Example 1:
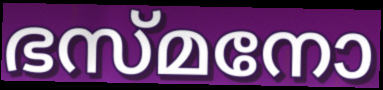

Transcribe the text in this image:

ഭസ്മനോ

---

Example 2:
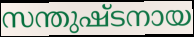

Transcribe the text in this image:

സന്തുഷ്ടനായ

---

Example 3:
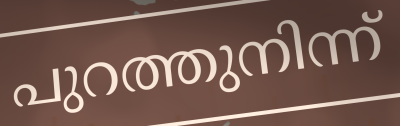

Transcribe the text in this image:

പുറത്തുനിന്ന്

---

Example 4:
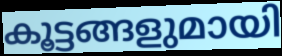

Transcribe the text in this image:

കൂട്ടങ്ങളുമായി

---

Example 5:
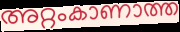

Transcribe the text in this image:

അറ്റംകാണാത്ത